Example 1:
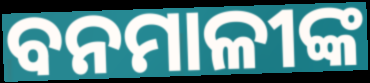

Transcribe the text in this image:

ବନମାଳୀଙ୍କ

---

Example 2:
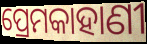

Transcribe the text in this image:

ପ୍ରେମକାହାଣୀ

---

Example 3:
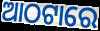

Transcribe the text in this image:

ଆଠଟାରେ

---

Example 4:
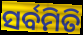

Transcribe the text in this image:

ସର୍ବମିତି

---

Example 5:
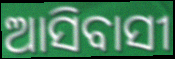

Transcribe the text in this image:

ଆସିବାସୀ